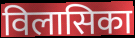
विलासिका